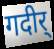
गदीर्